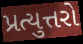
પ્રત્યુત્તરો